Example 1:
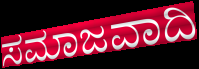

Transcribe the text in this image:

ಸಮಾಜವಾದಿ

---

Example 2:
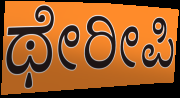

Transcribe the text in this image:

ಥೇರೀಪಿ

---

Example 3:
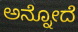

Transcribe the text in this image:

ಅನ್ನೋದೆ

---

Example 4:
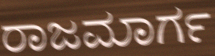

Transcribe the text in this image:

ರಾಜಮಾರ್ಗ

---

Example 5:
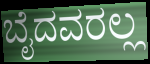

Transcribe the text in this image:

ಬೈದವರಲ್ಲ